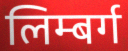
लिम्बर्ग